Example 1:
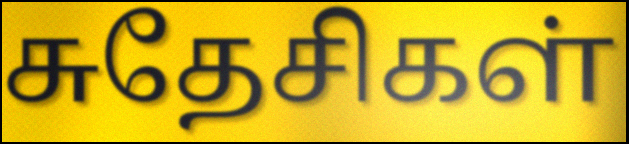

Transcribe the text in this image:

சுதேசிகள்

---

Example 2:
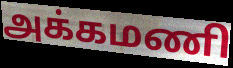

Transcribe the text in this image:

அக்கமணி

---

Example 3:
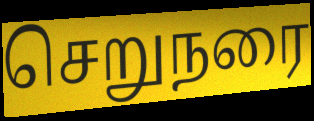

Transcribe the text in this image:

செறுநரை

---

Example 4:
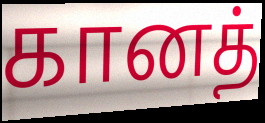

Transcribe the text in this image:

கானத்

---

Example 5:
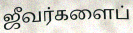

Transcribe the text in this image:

ஜீவர்களைப்